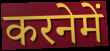
करनेमें